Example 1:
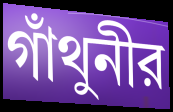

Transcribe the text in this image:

গাঁথুনীর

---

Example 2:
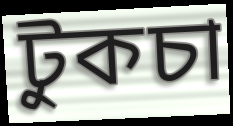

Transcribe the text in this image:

টুকচা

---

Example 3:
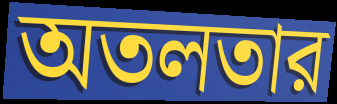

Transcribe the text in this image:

অতলতার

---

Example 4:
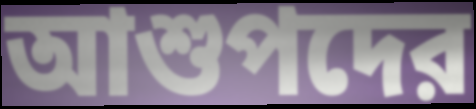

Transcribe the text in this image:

আশুপদের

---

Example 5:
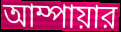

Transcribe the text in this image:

আম্পায়ার